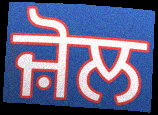
ਜ਼ੋਲ